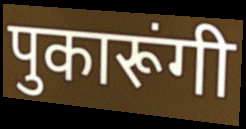
पुकारूंगी